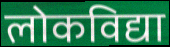
लोकविद्या